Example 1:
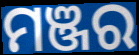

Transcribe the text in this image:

ମଞ୍ଜର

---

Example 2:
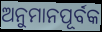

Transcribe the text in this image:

ଅନୁମାନପୂର୍ବକ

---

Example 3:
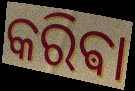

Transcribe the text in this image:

କରିଵା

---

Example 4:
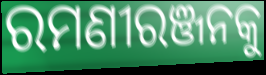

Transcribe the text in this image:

ରମଣୀରଞ୍ଜନକୁ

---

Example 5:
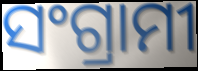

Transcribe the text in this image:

ସଂଗ୍ରାମୀ